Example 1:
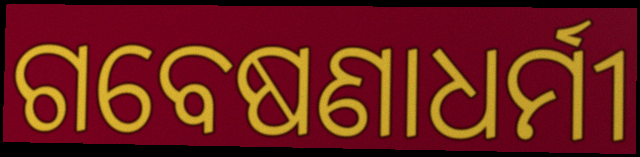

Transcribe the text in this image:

ଗବେଷଣାଧର୍ମୀ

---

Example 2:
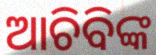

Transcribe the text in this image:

ଆଚିବିଙ୍କ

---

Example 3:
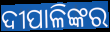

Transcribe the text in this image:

ଦୀପାଳିଙ୍କର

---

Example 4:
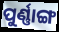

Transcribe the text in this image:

ପୁର୍ଣ୍ଣାଙ୍ଗ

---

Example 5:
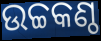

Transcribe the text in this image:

ଉଚ୍ଚକଣ୍ଠ